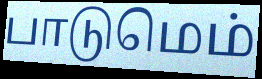
பாடுமெம்